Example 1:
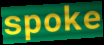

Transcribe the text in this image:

spoke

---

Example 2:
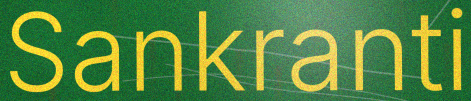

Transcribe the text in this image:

Sankranti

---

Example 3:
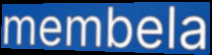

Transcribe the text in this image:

membela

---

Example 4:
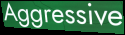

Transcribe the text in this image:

Aggressive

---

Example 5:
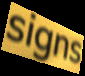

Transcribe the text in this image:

signs